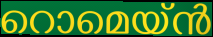
റൊമെയ്ൻ